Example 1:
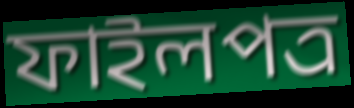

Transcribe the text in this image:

ফাইলপত্র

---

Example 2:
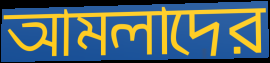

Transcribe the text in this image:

আমলাদের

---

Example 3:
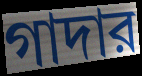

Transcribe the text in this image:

গাদার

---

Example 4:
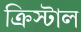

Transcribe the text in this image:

ক্রিস্টাল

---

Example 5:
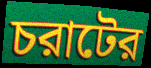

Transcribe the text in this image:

চরাটের